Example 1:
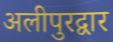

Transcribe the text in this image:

अलीपुरद्वार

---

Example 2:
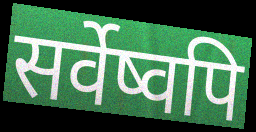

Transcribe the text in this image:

सर्वेष्वपि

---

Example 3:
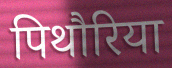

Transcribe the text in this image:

पिथौरिया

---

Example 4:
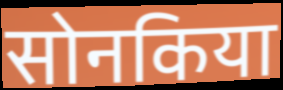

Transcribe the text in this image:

सोनकिया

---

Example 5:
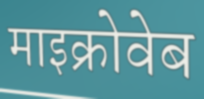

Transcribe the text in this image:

माइक्रोवेब